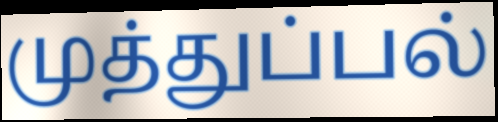
முத்துப்பல்